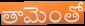
తామెంతో